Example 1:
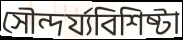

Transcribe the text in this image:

সৌন্দর্য্যবিশিষ্টা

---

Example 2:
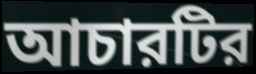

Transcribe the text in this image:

আচারটির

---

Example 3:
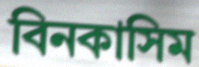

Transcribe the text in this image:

বিনকাসিম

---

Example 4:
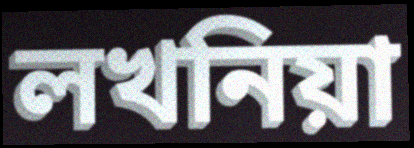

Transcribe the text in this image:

লখনিয়া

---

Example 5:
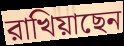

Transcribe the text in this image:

রাখিয়াছেন